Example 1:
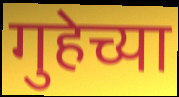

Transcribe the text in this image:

गुहेच्या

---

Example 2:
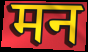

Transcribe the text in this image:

मन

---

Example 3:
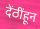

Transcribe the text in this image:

देंठींहून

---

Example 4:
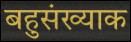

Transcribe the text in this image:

बहुसंख्याक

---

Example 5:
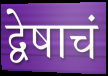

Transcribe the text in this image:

द्वेषाचं